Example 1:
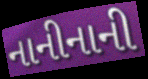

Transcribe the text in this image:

નાનીનાની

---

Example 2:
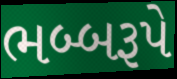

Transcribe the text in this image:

ભબ્બરૂપે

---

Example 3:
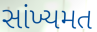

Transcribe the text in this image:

સાંખ્યમત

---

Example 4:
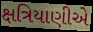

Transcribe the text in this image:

ક્ષત્રિયાણીએ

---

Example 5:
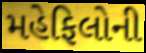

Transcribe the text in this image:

મહેફિલોની